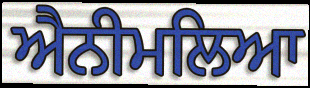
ਐਨੀਮਲਿਆ